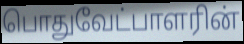
பொதுவேட்பாளரின்